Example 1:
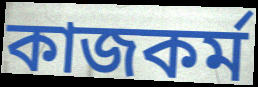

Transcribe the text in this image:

কাজকর্ম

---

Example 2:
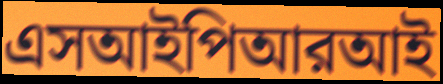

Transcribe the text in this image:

এসআইপিআরআই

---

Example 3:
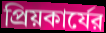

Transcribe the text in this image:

প্রিয়কার্যের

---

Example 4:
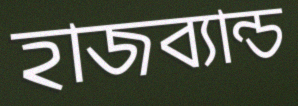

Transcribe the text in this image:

হাজব্যান্ড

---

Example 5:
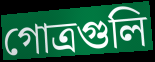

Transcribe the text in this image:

গোত্রগুলি